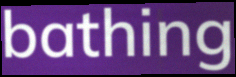
bathing